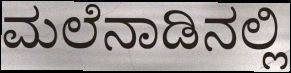
ಮಲೆನಾಡಿನಲ್ಲಿ